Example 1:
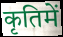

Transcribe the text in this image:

कृतिमें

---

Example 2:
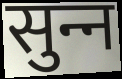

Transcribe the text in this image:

सुन्‍न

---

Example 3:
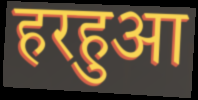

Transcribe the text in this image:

हरहुआ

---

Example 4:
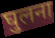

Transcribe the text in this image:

घुलना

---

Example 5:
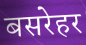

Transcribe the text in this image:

बसरेहर